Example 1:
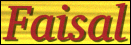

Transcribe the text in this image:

Faisal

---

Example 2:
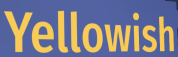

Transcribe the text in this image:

Yellowish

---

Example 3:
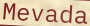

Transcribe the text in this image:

Mevada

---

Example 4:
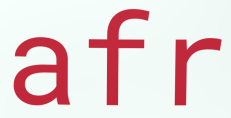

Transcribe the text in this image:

afr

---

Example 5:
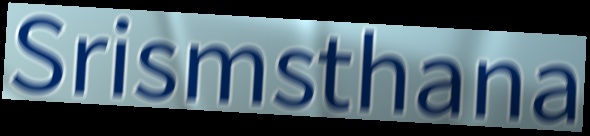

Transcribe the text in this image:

Srismsthana